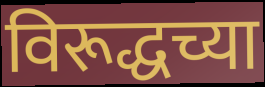
विरूद्धच्या